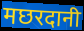
मछरदानी